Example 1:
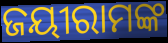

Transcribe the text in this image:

ଜୟୀରାମଙ୍କ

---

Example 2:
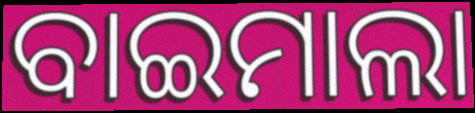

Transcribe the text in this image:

ବାଇମାଲା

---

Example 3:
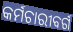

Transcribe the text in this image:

କର୍ମଚାରୀବର୍ଗ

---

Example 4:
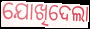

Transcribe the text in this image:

ଯୋଖିଦେଲା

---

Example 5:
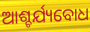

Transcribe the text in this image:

ଆଶ୍ଚର୍ଯ୍ୟବୋଧ